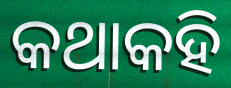
କଥାକହି